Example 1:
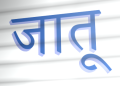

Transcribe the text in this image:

जातू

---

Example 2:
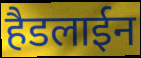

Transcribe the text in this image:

हैडलाईन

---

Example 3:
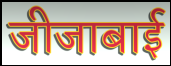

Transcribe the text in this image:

जीजाबाई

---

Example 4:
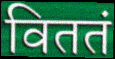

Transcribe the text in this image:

विततं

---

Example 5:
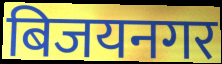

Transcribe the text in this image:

बिजयनगर